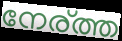
നേര്ത്ത